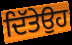
ਦਿੱਤੇਉਹ